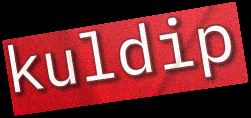
kuldip